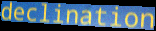
declination